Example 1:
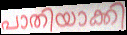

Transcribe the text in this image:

പാതിയാക്കി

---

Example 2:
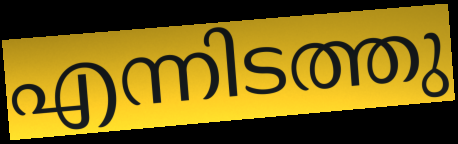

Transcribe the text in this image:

എന്നിടത്തു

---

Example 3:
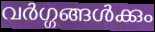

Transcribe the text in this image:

വർഗ്ഗങ്ങൾക്കും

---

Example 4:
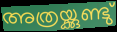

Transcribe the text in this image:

അത്രയ്ക്കുണ്ടു്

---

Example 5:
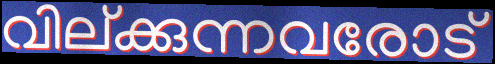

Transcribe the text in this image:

വില്ക്കുന്നവരോട്